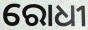
ରୋଧୀ